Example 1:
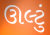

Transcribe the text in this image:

ઊલ્ટું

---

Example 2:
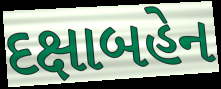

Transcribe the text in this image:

દક્ષાબહેન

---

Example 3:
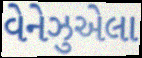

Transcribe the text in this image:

વેનેઝુએલા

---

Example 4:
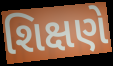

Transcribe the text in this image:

શિક્ષણે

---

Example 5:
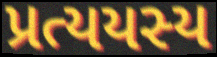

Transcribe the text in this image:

પ્રત્યયસ્ય